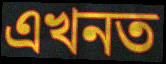
এখনত